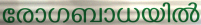
രോഗബാധയിൽ